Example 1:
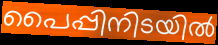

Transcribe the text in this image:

പൈപ്പിനിടയിൽ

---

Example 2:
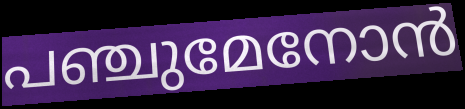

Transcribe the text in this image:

പഞ്ചുമേനോൻ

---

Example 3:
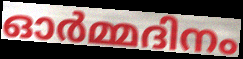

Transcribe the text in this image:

ഓർമ്മദിനം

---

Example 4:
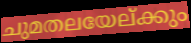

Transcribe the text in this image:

ചുമതലയേല്ക്കും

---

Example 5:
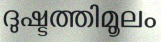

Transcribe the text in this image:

ദുഷ്ടത്തിമൂലം